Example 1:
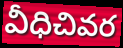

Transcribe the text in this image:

వీధిచివర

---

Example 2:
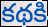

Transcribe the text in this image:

కథకి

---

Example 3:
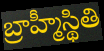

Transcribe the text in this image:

బ్రాహ్మీస్థితి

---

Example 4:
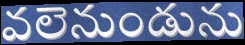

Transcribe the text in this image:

వలెనుండును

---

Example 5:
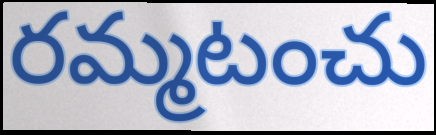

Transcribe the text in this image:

రమ్మటంచు